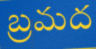
బ్రమద